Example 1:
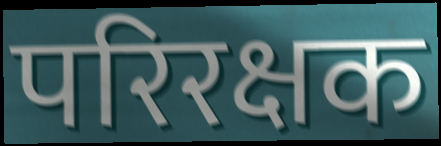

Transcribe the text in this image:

परिरक्षक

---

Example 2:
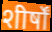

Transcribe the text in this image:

शीर्षों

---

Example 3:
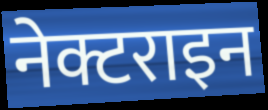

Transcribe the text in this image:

नेक्टराइन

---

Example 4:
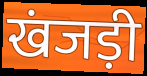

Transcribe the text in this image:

खंजड़ी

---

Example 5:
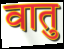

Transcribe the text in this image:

वातु